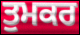
ਤੁਮਕਰ